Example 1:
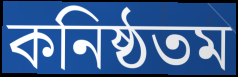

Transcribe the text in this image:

কনিষ্ঠতম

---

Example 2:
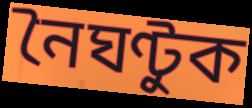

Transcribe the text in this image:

নৈঘণ্টুক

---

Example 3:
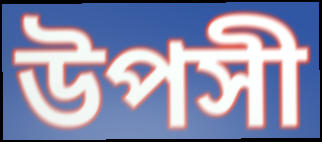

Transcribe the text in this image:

উপসী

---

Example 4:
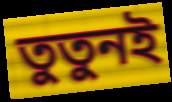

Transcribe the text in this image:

তুতুনই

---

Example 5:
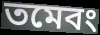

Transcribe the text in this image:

তমেবং